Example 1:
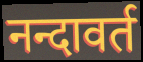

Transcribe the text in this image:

नन्दावर्त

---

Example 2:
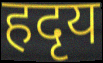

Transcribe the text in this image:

हदृय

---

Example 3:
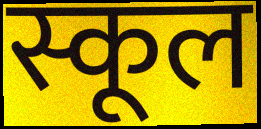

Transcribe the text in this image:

स्‍कूल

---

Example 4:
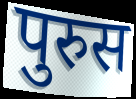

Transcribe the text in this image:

पुरुस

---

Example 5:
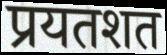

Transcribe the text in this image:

प्रयतशत